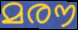
മരൗ